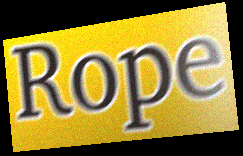
Rope